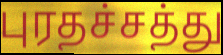
புரதச்சத்து